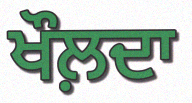
ਖੌਲ਼ਦਾ